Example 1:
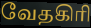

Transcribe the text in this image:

வேதகிரி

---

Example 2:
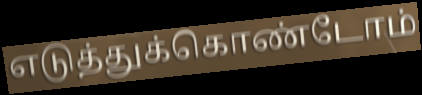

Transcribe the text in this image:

எடுத்துக்கொண்டோம்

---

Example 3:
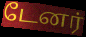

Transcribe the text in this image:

டேனர்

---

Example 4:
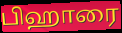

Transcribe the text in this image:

பிஹாரை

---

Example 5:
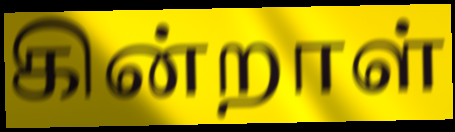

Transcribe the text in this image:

கின்றாள்